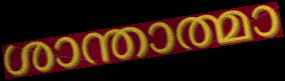
ശാന്താത്മാ